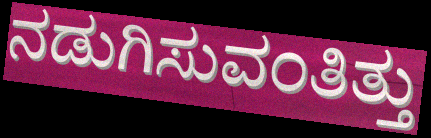
ನಡುಗಿಸುವಂತಿತ್ತು